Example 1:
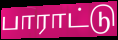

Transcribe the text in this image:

பாராட்டு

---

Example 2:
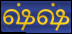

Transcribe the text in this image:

ஷ்ஷ்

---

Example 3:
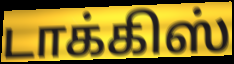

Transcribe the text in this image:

டாக்கிஸ்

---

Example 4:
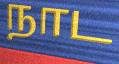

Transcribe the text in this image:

நாட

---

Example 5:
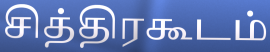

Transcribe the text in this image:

சித்திரகூடம்